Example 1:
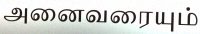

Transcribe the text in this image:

அனைவரையும்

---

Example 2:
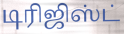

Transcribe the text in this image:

டிரிஜிஸ்ட்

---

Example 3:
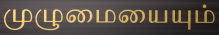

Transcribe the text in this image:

முழுமையையும்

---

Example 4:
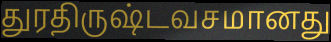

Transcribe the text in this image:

துரதிருஷ்டவசமானது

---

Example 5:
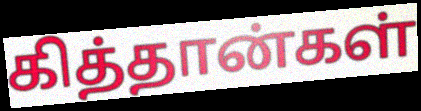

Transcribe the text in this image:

கித்தான்கள்